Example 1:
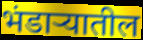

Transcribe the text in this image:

भंडाऱ्यातील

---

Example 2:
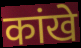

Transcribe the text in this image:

कांखे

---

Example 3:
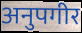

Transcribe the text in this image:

अनुपगीर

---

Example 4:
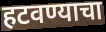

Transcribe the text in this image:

हटवण्याचा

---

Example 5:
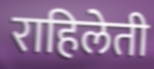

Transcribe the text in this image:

राहिलेती